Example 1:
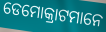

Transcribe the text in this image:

ଡେମୋକ୍ରାଟମାନେ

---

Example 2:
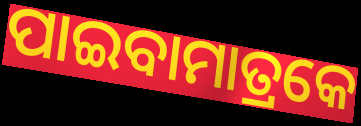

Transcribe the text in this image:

ପାଇବାମାତ୍ରକେ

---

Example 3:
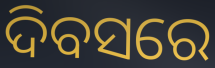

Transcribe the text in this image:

ଦିବସରେ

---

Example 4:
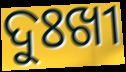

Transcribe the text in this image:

ଦୁଃଖୀ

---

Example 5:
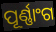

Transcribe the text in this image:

ପୂର୍ଣ୍ଣାଂଗ